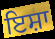
ਇਸ਼ਾ